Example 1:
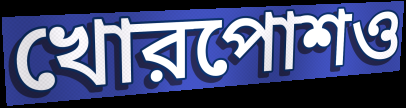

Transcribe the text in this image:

খোরপোশও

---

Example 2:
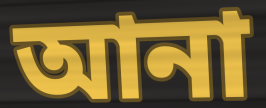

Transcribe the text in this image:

আনা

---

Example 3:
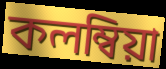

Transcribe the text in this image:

কলম্বিয়া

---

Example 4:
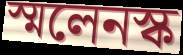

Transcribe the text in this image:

স্মলেনস্ক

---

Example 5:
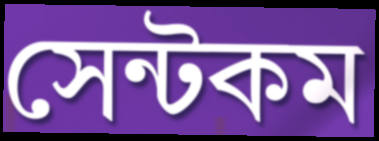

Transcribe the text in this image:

সেন্টকম